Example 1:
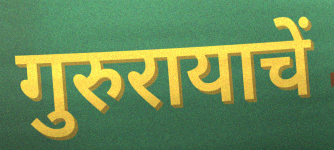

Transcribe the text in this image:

गुरुरायाचें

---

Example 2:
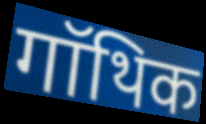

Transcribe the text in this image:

गॉथिक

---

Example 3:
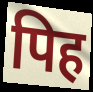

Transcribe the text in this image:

पिह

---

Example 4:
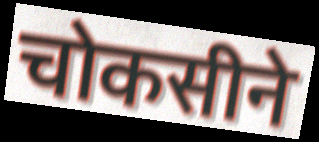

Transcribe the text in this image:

चोकसीने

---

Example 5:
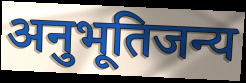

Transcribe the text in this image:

अनुभूतिजन्य